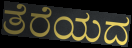
ತೆರೆಯದ